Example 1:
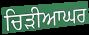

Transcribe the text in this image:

ਚਿੜੀਆਘਰ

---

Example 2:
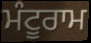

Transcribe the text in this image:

ਮੰਟੂਰਾਮ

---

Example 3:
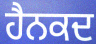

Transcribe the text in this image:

ਹੈਨਕਦ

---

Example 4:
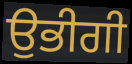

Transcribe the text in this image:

ਉਭੀਗੀ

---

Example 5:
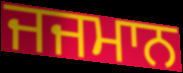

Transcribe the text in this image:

ਜਜਮਾਨ